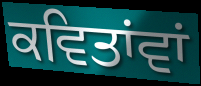
ਕਵਿਤਾਂਵਾਂ